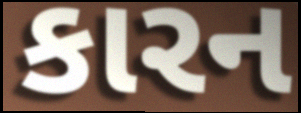
કારન